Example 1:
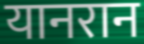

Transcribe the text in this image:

यानरान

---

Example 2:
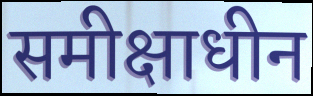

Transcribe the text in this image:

समीक्षाधीन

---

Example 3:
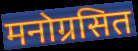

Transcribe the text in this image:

मनोग्रसित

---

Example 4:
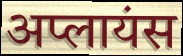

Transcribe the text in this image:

अप्‍लायंस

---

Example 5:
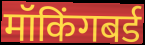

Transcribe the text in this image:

मॉकिंगबर्ड